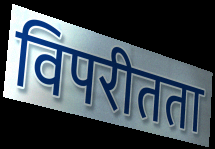
विपरीतता